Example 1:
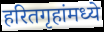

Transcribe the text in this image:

हरितगृहांमध्ये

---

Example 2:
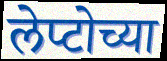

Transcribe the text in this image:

लेप्टोच्या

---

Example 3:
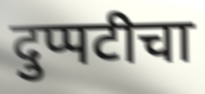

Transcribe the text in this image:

दुप्पटीचा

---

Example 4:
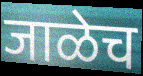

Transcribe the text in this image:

जाळेच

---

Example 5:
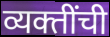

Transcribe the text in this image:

व्‍यक्‍तींची